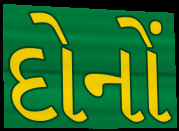
દોનોં